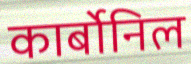
कार्बोनिल